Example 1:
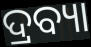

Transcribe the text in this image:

ଦ୍ରବ୍ୟା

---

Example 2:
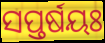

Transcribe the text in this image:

ସପ୍ତର୍ଷୟଃ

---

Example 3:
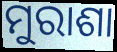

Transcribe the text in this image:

ମୁରାଶା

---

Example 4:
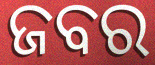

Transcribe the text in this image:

ଜବର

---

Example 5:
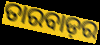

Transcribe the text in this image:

ତାରବାଡ଼ର